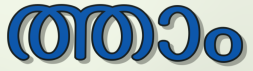
ത്താം